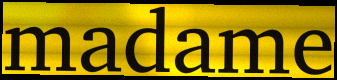
madame